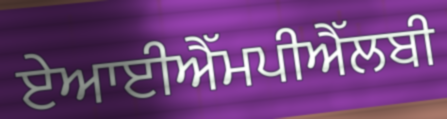
ਏਆਈਐੱਮਪੀਐੱਲਬੀ